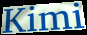
Kimi